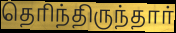
தெரிந்திருந்தார்